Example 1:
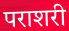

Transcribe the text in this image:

पराशरी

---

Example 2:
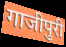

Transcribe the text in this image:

गाजीपुरी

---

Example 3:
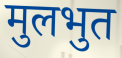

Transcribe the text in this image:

मुलभुत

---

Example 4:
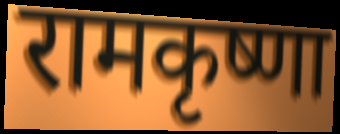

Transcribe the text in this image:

रामकृष्णा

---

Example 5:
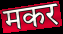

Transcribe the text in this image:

मकर